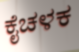
ಕೈಚಳಕ